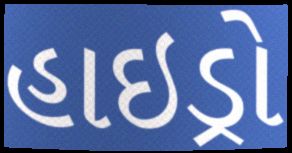
હાઇડ્રો